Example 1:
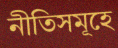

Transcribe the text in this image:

নীতিসমূহে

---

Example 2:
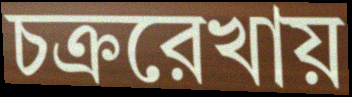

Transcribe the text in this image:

চক্ররেখায়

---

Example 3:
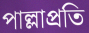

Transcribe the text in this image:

পাল্লাপ্রতি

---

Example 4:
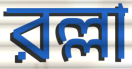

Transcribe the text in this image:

রল্লা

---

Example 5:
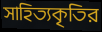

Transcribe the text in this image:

সাহিত্যকৃতির